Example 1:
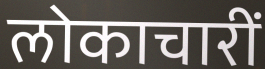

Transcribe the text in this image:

लोकाचारीं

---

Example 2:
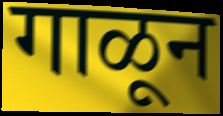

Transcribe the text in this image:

गाळून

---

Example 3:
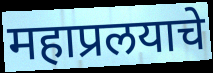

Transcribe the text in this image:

महाप्रलयाचे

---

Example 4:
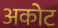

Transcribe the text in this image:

अकोट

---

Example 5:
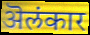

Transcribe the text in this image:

ऄलंकार